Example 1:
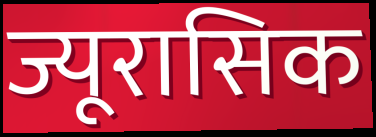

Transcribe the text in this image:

ज्यूरासिक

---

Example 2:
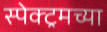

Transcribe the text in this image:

स्पेक्ट्रमच्या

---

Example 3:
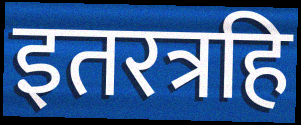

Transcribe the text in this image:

इतरत्रहि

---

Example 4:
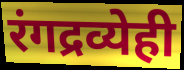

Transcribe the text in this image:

रंगद्रव्येही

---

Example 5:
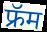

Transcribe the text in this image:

फ्रॅम